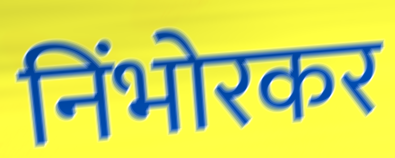
निंभोरकर